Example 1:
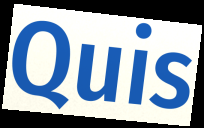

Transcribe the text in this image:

Quis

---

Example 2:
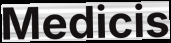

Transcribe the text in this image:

Medicis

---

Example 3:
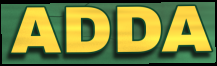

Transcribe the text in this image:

ADDA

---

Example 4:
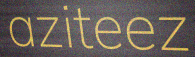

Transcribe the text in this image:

aziteez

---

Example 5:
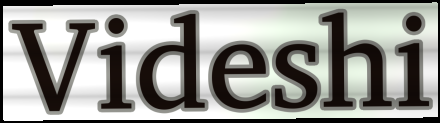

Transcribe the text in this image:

Videshi